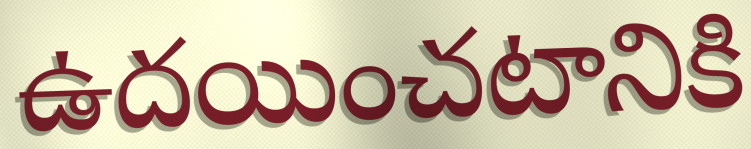
ఉదయించటానికి